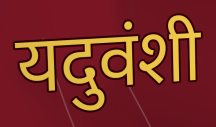
यदुवंशी